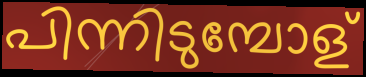
പിന്നിടുമ്പോള്